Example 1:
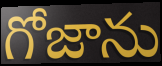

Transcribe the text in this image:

గోజాను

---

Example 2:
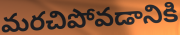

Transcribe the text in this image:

మరచిపోవడానికి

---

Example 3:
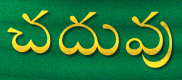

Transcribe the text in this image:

చదువు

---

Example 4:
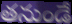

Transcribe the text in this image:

తనుండే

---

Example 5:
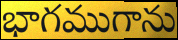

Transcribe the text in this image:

భాగముగాను